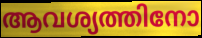
ആവശ്യത്തിനോ